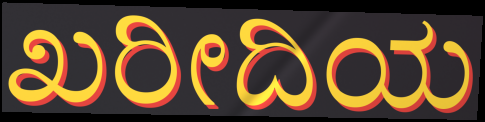
ಖರೀದಿಯ